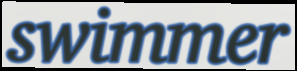
swimmer